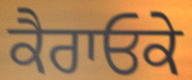
ਕੈਰਾਓਕੇ